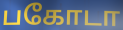
பகோடா